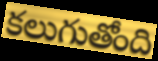
కలుగుతోంది